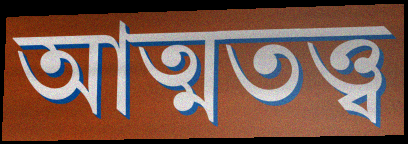
আত্মতত্ত্ব